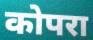
कोपरा